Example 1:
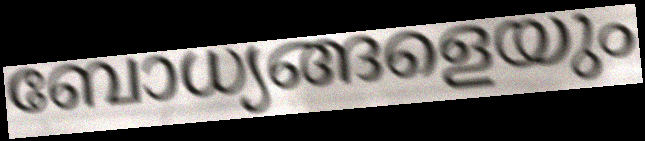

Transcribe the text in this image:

ബോധ്യങ്ങളെയും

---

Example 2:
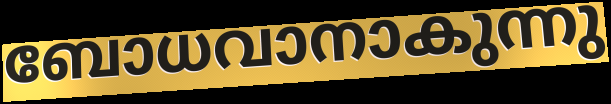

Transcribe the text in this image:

ബോധവാനാകുന്നു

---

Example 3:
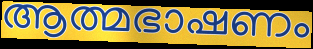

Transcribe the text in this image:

ആത്മഭാഷണം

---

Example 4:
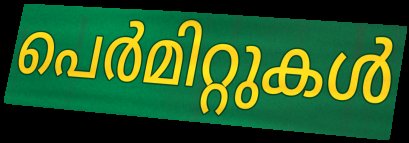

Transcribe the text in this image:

പെർമിറ്റുകൾ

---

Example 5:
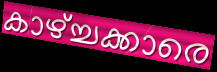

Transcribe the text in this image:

കാഴ്ച്ചക്കാരെ